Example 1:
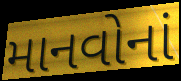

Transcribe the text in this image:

માનવોનાં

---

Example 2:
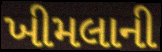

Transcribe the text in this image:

ખીમલાની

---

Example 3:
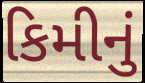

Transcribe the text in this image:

કિમીનું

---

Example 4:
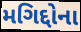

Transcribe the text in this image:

મગિદ્દોના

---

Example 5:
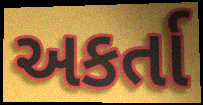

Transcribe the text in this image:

અકર્તા